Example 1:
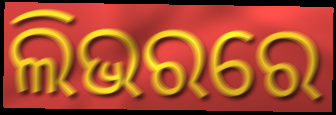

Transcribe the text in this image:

ଲିଭରରେ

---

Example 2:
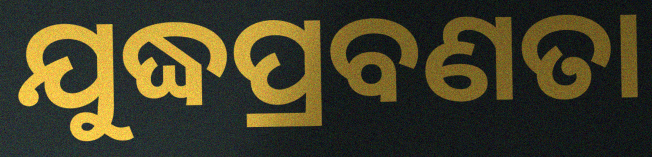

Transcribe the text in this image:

ଯୁଦ୍ଧପ୍ରବଣତା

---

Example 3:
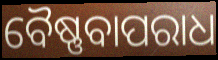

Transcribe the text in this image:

ବୈଷ୍ଣବାପରାଧ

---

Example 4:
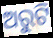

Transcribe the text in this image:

ଅରୁଟି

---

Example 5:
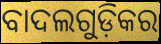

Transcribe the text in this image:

ବାଦଲଗୁଡ଼ିକର